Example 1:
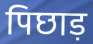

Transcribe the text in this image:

पिछाड़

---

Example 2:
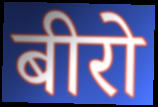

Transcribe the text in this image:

बीरो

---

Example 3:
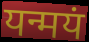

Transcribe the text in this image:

यन्मयं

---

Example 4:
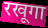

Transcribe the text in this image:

रखूगा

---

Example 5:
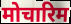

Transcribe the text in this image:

मोचारिम